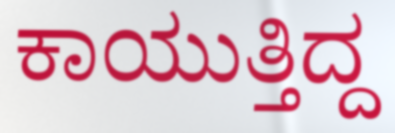
ಕಾಯುತ್ತಿದ್ದ